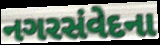
નગરસંવેદના